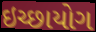
ઇચ્છાયોગ